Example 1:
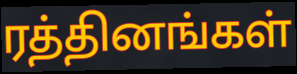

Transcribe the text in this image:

ரத்தினங்கள்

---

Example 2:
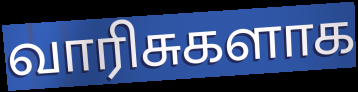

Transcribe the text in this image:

வாரிசுகளாக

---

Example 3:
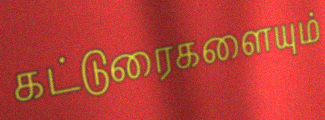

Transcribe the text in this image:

கட்டுரைகளையும்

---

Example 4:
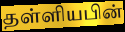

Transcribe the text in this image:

தள்ளியபின்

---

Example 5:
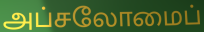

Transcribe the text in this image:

அப்சலோமைப்